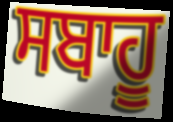
ਸਬਾਹੂ